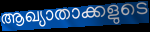
ആഖ്യാതാക്കളുടെ